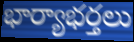
భార్యాభర్తలు